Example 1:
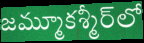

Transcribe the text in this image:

జమ్మూకశ్మీర్‌లో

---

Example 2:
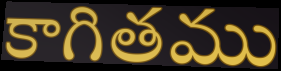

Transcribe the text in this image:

కాగితము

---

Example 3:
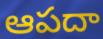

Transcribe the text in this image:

ఆపదా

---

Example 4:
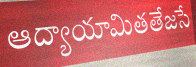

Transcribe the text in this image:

ఆద్యాయామితతేజసే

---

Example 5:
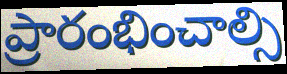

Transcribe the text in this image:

ప్రారంభించాల్సి